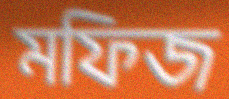
মফিজ